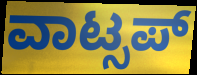
ವಾಟ್ಸಪ್